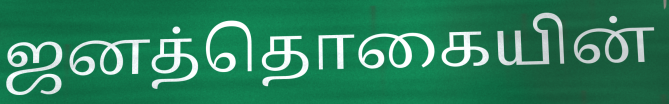
ஜனத்தொகையின்